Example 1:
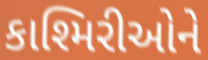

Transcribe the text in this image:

કાશ્મિરીઓને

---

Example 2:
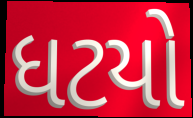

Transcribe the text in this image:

ધટયો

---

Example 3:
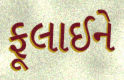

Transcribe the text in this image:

ફૂલાઈને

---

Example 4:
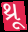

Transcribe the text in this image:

થ્રૂ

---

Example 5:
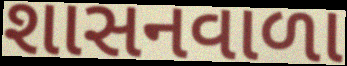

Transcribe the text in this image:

શાસનવાળા